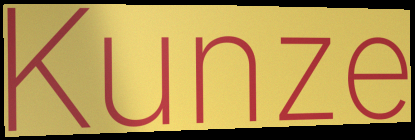
Kunze